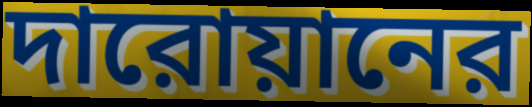
দারোয়ানের